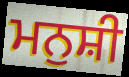
ਮਨੁਸ਼ੀ